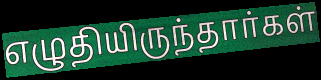
எழுதியிருந்தார்கள்